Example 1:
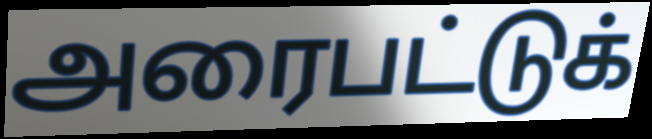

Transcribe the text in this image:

அரைபட்டுக்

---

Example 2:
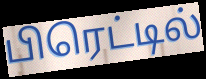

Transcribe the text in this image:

பிரெட்டில்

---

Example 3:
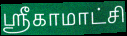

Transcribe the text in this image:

ஸ்ரீகாமாட்சி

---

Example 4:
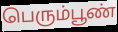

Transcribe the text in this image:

பெரும்பூண்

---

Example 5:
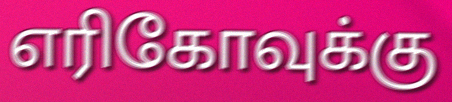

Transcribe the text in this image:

எரிகோவுக்கு